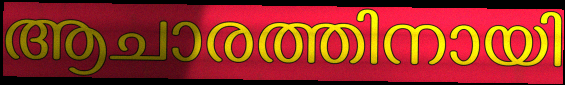
ആചാരത്തിനായി